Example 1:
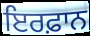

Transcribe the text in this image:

ਇਰਫ਼ਾਨ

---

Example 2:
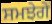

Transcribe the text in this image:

ਸਮਝੇਗੇ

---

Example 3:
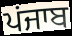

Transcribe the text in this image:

ਪਂਜਾਬ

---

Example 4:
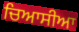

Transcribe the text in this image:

ਚਿਆਸੀਆ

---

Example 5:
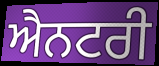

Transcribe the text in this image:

ਐਨਟਰੀ